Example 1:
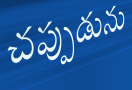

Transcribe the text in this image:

చప్పుడును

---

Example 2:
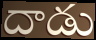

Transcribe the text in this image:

దాడు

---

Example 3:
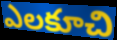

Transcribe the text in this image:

ఎలకూచి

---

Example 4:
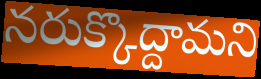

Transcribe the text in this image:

నరుక్కొద్దామని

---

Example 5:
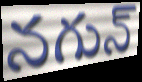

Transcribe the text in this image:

నగున్